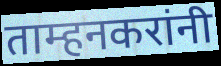
ताम्हनकरांनी